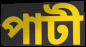
পাটী